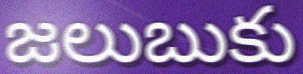
జలుబుకు